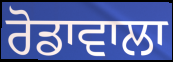
ਰੋਡਾਵਾਲਾ